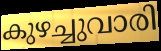
കുഴച്ചുവാരി